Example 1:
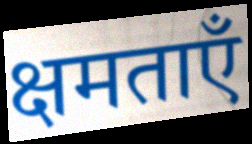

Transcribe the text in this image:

क्षमताएँ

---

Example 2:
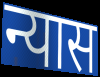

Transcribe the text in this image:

न्यास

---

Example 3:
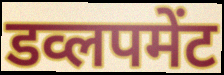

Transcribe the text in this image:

डव्लपमेंट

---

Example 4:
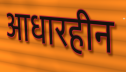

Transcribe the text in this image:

आधारहीन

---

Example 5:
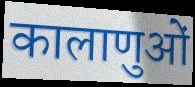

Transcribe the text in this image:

कालाणुओं